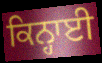
ਕਿਨ੍ਹਾਈ